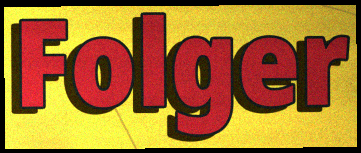
Folger